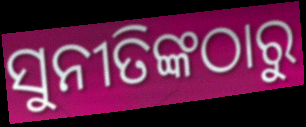
ସୁନୀତିଙ୍କଠାରୁ